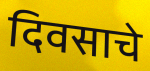
दिवसाचे